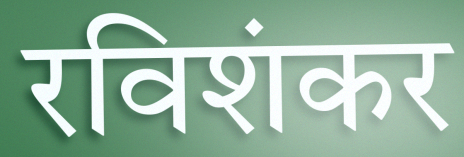
रविशंकर